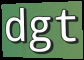
dgt